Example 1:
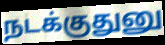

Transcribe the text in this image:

நடக்குதுனு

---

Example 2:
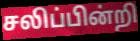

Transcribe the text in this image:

சலிப்பின்றி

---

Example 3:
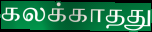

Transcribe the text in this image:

கலக்காதது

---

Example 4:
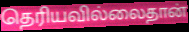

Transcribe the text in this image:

தெரியவில்லைதான்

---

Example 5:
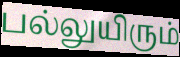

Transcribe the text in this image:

பல்லுயிரும்